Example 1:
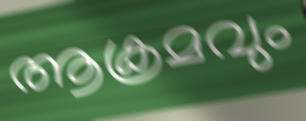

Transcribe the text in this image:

ആക്രമവും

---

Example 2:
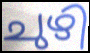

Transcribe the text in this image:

ചുഴി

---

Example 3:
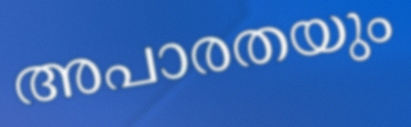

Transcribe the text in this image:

അപാരതയും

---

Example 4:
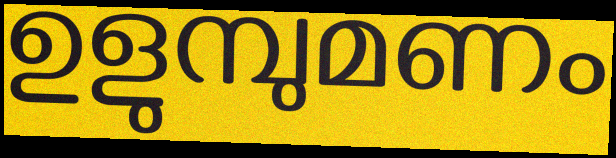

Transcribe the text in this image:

ഉളുമ്പുമണം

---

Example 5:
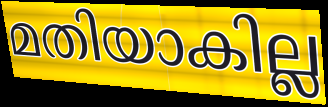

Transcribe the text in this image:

മതിയാകില്ല